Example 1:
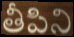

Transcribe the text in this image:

తీపిని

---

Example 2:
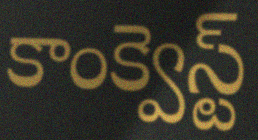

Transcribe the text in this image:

కాంక్వెస్ట్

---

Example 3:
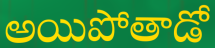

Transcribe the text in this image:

అయిపోతాడో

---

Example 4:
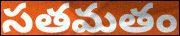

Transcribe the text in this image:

సతమతం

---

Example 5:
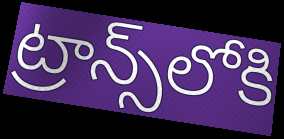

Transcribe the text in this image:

ట్రాన్స్‌లోకి